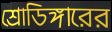
শ্রোডিঙ্গারের